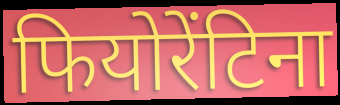
फियोरेंटिना